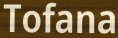
Tofana